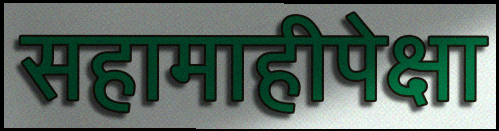
सहामाहीपेक्षा